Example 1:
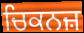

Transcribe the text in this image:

ਚਿਕਨਜ਼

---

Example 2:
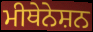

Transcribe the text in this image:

ਮੀਥੇਨੇਸ਼ਨ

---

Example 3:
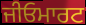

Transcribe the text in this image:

ਜੀਓਮਾਰਟ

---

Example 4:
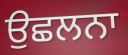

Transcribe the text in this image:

ਉਛਲਨਾ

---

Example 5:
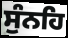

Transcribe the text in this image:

ਸੁੰਨਹਿ